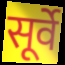
सूर्वे